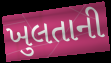
ખુલતાની